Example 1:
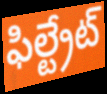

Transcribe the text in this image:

ఫిల్ట్రేట్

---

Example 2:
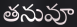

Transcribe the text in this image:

తనువూ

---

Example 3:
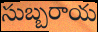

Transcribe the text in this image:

సుబ్బరాయ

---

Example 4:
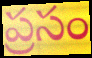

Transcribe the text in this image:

ప్రసం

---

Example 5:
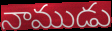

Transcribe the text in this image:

నాముడు